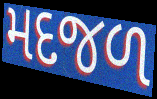
મદજળ